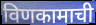
विणकामाची